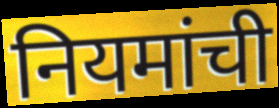
नियमांची